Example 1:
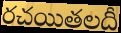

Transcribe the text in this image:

రచయితలదీ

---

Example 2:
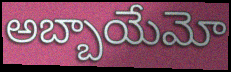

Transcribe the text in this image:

అబ్బాయేమో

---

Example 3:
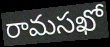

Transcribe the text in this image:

రామసఖో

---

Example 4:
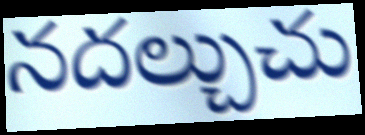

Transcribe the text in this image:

నదల్చుచు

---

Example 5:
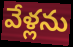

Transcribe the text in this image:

వేళ్లను